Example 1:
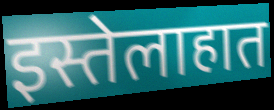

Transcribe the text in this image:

इस्तेलाहात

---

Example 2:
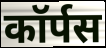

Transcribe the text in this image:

कॉर्पस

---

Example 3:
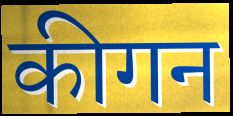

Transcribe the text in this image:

कीगन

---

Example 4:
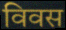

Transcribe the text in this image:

विवस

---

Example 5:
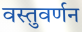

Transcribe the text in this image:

वस्तुवर्णन